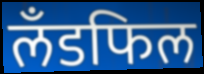
लँडफिल